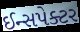
ઈન્સપેક્ટર